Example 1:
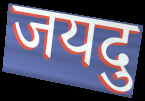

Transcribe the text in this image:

जयदु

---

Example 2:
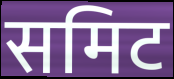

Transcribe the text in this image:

समिट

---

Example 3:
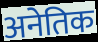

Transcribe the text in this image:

अनेतिक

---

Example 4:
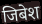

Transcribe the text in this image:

जिबेश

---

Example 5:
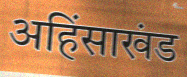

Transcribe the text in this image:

अहिंसाखंड